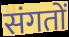
संगतों